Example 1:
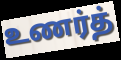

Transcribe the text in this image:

உணர்த்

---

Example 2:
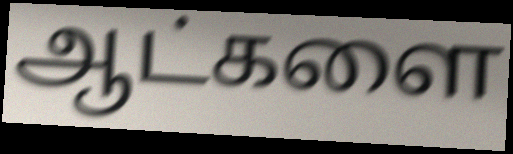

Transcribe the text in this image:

ஆட்களை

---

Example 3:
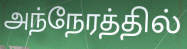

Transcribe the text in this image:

அந்நேரத்தில்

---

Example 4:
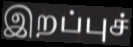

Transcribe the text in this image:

இறப்புச்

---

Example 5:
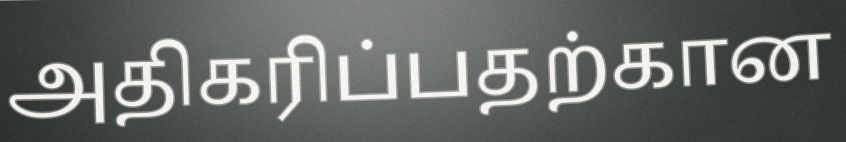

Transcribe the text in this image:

அதிகரிப்பதற்கான